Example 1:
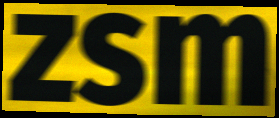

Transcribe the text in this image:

zsm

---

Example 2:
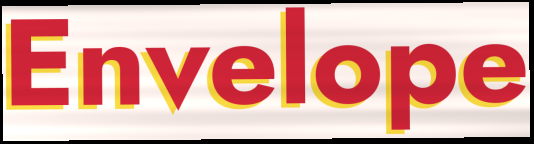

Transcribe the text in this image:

Envelope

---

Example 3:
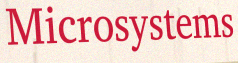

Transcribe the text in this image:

Microsystems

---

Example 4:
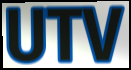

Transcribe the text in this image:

UTV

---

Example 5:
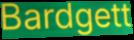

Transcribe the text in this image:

Bardgett